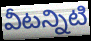
వీటన్నిటి